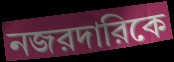
নজরদারিকে